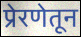
प्रेरणेतून